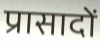
प्रासादों